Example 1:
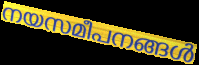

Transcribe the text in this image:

നയസമീപനങ്ങൾ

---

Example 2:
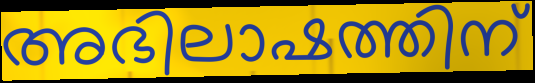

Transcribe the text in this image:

അഭിലാഷത്തിന്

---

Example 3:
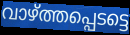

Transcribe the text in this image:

വാഴ്ത്തപ്പെടട്ടെ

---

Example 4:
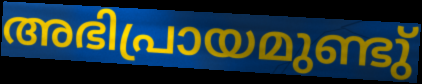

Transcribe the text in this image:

അഭിപ്രായമുണ്ടു്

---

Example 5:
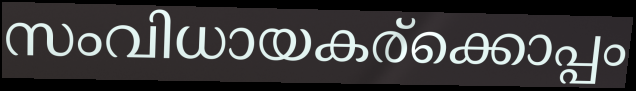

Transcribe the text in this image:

സംവിധായകര്ക്കൊപ്പം